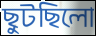
ছুটছিলো